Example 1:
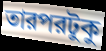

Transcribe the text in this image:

তারপরটুকু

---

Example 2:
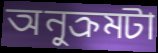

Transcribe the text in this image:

অনুক্রমটা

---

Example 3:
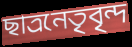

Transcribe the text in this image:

ছাত্রনেতৃবৃন্দ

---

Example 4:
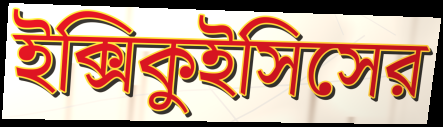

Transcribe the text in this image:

ইক্সিকুইসিসের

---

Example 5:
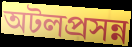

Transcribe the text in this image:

অটলপ্রসন্ন